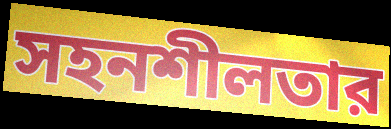
সহনশীলতার